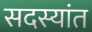
सदस्यांत